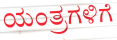
ಯಂತ್ರಗಳಿಗೆ